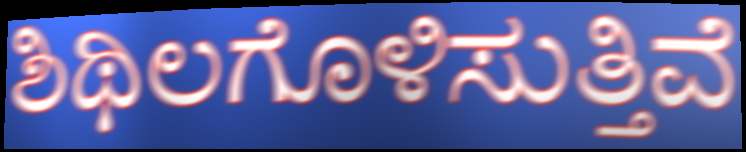
ಶಿಥಿಲಗೊಳಿಸುತ್ತಿವೆ